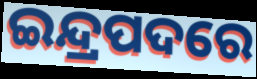
ଇନ୍ଦ୍ରପଦରେ